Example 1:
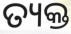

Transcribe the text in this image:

ତ୍ୟକ୍ତ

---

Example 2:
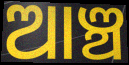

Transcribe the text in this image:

ଆଞ୍ଚ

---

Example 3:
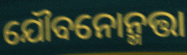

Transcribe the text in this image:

ଯୌବନୋନ୍ମତ୍ତା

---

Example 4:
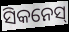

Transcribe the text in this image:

ସିକନେସ୍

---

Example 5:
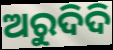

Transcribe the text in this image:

ଅରୁଦିଦି